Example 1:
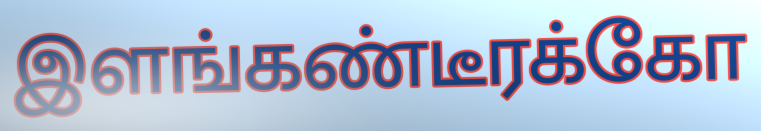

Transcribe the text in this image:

இளங்கண்டீரக்கோ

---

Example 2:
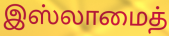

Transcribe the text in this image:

இஸ்லாமைத்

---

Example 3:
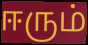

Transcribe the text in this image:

ஈரும்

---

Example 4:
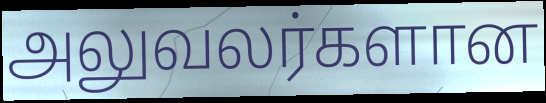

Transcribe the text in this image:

அலுவலர்களான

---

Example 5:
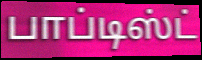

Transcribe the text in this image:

பாப்டிஸ்ட்